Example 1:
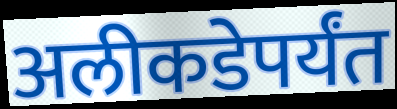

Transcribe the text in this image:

अलीकडेपर्यंत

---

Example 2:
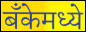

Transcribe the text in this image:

बँकेमध्ये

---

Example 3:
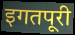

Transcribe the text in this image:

इगतपूरी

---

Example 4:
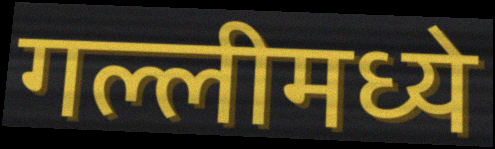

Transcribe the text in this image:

गल्लीमध्ये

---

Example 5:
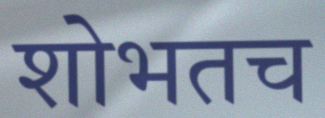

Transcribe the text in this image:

शोभतच